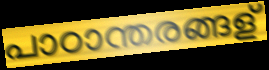
പാഠാന്തരങ്ങള്